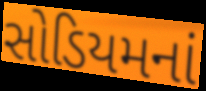
સોડિયમનાં